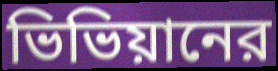
ভিভিয়ানের